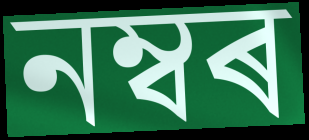
নম্বৰ